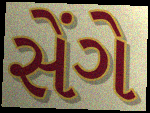
સેંગે